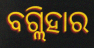
ବଗ୍ଲିହାର